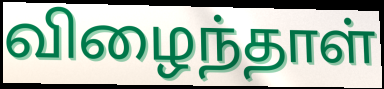
விழைந்தாள்